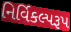
નિર્વિકલ્પરૂપ